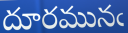
దూరమునఁ